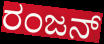
ರಂಜನ್